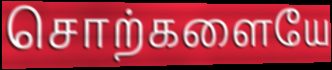
சொற்களையே